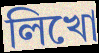
লিখো